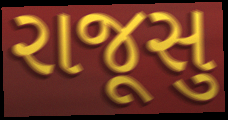
રાજૂસુ